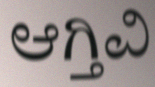
ಆಗ್ತಿವಿ